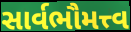
સાર્વભૌમત્ત્વ